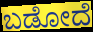
ಬಡೋದೆ